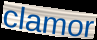
clamor